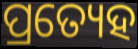
ପ୍ରତ୍ୟେହ